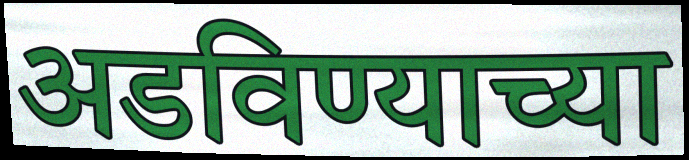
अडविण्याच्या